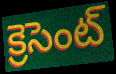
క్రెసెంట్